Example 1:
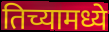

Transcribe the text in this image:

तिच्यामध्ये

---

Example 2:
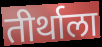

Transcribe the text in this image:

तीर्थाला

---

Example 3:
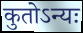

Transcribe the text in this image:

कुतोऽन्यः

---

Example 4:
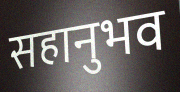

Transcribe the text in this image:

सहानुभव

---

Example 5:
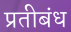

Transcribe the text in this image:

प्रतीबंध